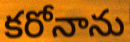
కరోనాను